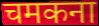
चमकना